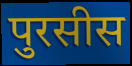
पुरसीस